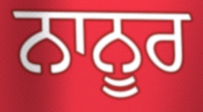
ਨਾਨੂਰ